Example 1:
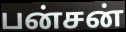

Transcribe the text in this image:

பன்சன்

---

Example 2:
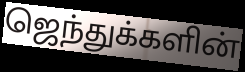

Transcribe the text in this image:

ஜெந்துக்களின்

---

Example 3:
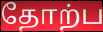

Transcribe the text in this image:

தோற்ப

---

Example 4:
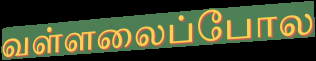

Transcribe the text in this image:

வள்ளலைப்போல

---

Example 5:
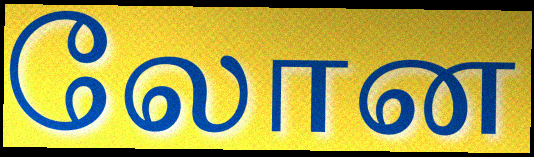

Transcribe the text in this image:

லோன